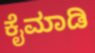
ಕೈಮಾಡಿ